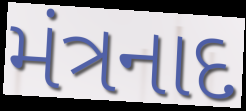
મંત્રનાદ